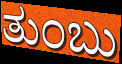
ತುಂಬು